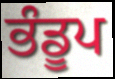
ਭੰਡੂਪ